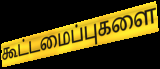
கூட்டமைப்புகளை